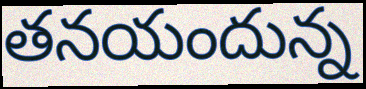
తనయందున్న